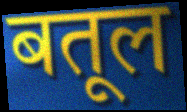
बतूल